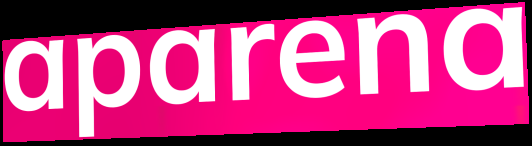
aparena